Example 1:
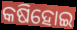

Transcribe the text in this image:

କଷିହୋଇ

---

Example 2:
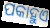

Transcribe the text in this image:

ପକାହୁଏ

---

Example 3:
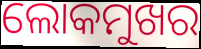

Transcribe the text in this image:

ଲୋକମୁଖର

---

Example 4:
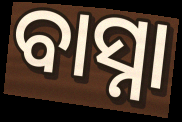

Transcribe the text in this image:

ବାସ୍ନା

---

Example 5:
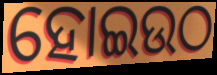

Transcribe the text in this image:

ହୋଇଉଠ